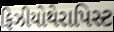
ફિઝીયોથેરાપિસ્ટ